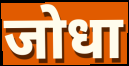
जोधा